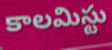
కాలమిస్టు